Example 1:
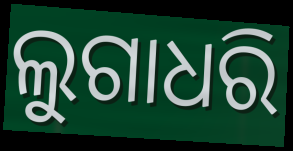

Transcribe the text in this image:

ଲୁଗାଧରି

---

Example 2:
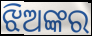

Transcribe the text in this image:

ଝିଅଙ୍କର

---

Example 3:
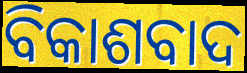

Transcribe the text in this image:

ବିକାଶବାଦ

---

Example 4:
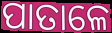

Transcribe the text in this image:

ପାତାଳେ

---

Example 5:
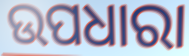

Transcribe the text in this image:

ଉପଧାରା